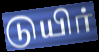
டுயிர்